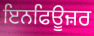
ਇਨਫਿਊਜ਼ਰ